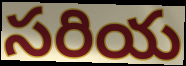
సరియ